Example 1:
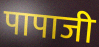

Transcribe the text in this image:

पापाजी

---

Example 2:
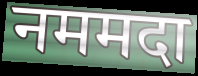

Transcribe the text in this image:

नममदा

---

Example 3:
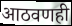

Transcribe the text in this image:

आठवणही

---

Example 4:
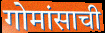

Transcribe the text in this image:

गोमांसाची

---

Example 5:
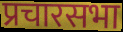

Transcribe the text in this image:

प्रचारसभा